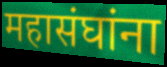
महासंघांना